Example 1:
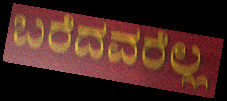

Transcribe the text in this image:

ಬರೆದವರೆಲ್ಲ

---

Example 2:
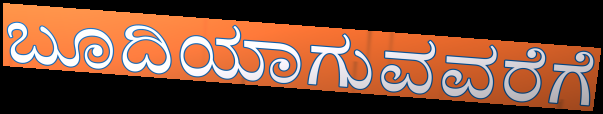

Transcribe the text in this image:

ಬೂದಿಯಾಗುವವರೆಗೆ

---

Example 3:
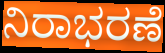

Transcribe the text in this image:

ನಿರಾಭರಣೆ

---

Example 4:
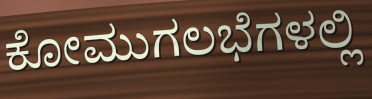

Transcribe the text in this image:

ಕೋಮುಗಲಭೆಗಳಲ್ಲಿ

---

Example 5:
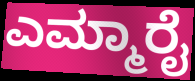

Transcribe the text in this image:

ಎಮ್ಮಾರೈ